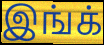
இங்க்